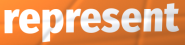
represent